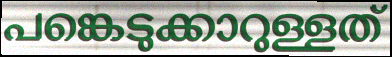
പങ്കെടുക്കാറുള്ളത്